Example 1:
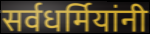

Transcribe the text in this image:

सर्वधर्मियांनी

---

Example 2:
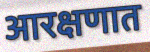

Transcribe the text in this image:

आरक्षणात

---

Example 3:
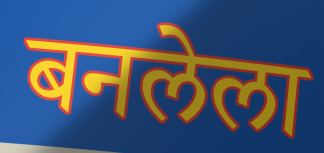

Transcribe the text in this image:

बनलेला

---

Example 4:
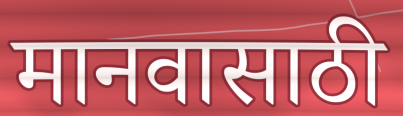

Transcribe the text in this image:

मानवासाठी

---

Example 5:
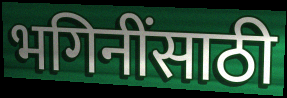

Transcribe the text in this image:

भगिनींसाठी